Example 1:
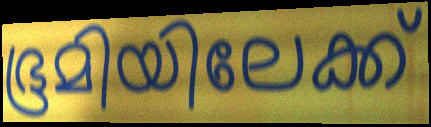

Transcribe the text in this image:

ഭൂമിയിലേക്ക്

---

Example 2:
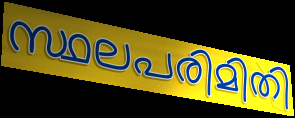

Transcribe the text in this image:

സ്ഥലപരിമിതി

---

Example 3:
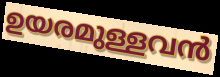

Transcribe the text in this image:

ഉയരമുള്ളവൻ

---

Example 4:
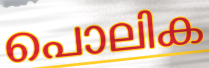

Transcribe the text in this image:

പൊലിക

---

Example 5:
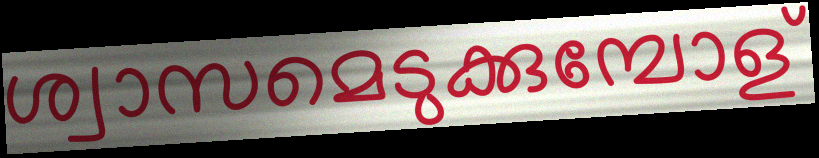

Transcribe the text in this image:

ശ്വാസമെടുക്കുമ്പോള്